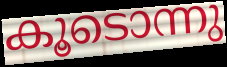
കൂടൊന്നു